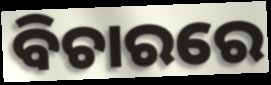
ବିଚାରରେ